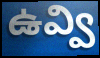
ఉవ్వి